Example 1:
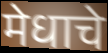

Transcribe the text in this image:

मेधाचे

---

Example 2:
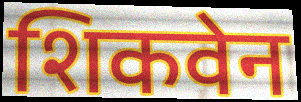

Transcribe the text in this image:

शिकवेन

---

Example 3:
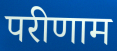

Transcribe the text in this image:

परीणाम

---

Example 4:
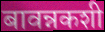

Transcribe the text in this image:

बावन्नकशी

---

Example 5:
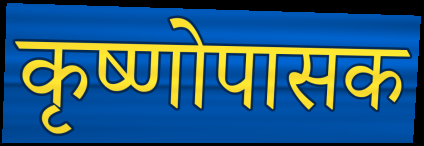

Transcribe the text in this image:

कृष्णोपासक